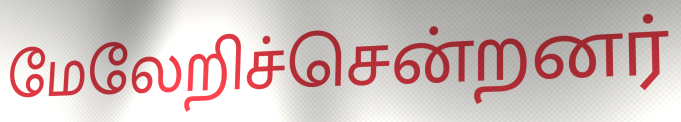
மேலேறிச்சென்றனர்